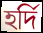
হৰ্দি